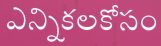
ఎన్నికలకోసం